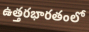
ఉత్తరభారతంలో